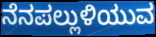
ನೆನಪಲ್ಲುಳಿಯುವ